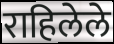
राहिलेले